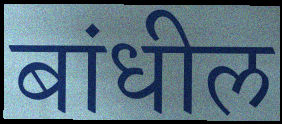
बांधील